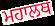
ਮਹਾਲਥ